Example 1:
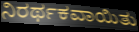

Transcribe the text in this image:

ನಿರರ್ಥಕವಾಯಿತು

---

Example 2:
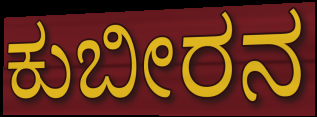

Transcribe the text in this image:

ಕುಬೀರನ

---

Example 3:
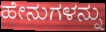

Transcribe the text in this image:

ಹೇನುಗಳನ್ನು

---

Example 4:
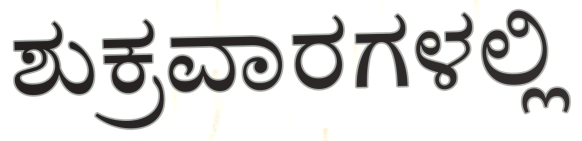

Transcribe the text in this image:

ಶುಕ್ರವಾರಗಳಲ್ಲಿ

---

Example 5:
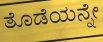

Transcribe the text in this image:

ತೊಡೆಯನ್ನೇ